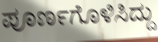
ಪೂರ್ಣಗೊಳಿಸಿದ್ದು